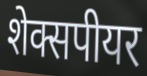
शेक्सपीयर